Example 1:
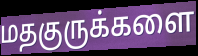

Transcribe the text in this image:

மதகுருக்களை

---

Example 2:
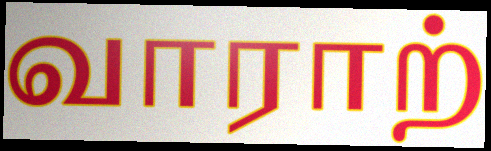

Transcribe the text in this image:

வாராற்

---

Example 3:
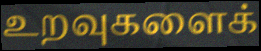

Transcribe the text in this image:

உறவுகளைக்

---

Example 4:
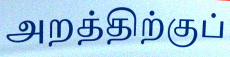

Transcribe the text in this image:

அறத்திற்குப்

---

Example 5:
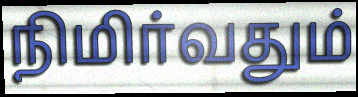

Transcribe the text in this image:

நிமிர்வதும்